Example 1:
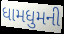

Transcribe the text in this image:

ધામધુમની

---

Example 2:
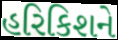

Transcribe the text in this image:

હરિકિશને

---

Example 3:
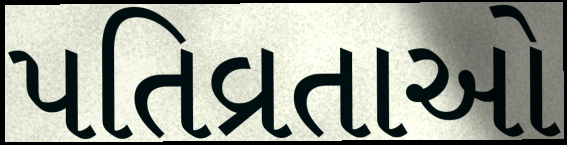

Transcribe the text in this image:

પતિવ્રતાઓ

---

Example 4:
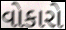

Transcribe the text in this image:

વોકારો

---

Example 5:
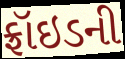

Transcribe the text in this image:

ફ્રૉઇડની